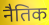
नैतिक